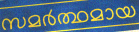
സമർത്ഥമായ